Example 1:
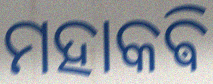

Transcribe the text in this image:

ମହାକଵି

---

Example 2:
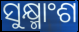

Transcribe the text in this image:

ସୁକ୍ଷ୍ମାଂଶ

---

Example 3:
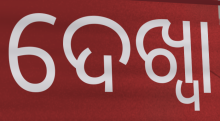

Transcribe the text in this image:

ଦେଖ୍ବା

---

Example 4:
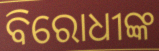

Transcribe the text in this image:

ବିରୋଧୀଙ୍କ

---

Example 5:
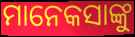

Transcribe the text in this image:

ମାନେକସାଙ୍କୁ